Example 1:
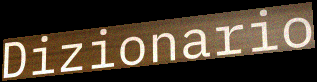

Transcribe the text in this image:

Dizionario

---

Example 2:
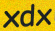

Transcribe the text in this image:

xdx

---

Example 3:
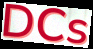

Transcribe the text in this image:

DCs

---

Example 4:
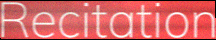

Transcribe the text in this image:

Recitation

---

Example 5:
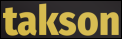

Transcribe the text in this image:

takson